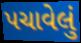
પચાવેલું